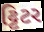
ટ્ટિટર